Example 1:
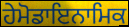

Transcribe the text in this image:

ਹੇਮੋਡਾਇਨਾਮਿਕ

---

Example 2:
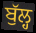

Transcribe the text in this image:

ਬੁੱਲ੍ਹ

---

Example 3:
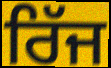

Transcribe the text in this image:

ਰਿੱਜ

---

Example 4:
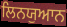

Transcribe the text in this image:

ਲਿਨਯੁਆਨ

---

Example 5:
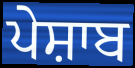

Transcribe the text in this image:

ਪੇਸ਼ਾਬ